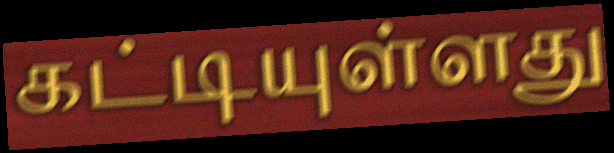
கட்டியுள்ளது